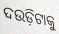
ଦଉଡ଼ିଟାକୁ